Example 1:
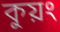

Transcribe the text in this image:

কুয়ং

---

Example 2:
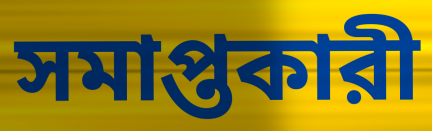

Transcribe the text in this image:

সমাপ্তকারী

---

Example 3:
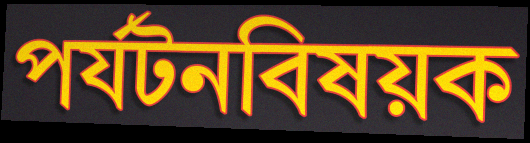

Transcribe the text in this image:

পর্যটনবিষয়ক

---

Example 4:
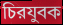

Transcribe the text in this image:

চিরযুবক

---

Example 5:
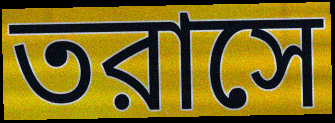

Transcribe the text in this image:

তরাসে